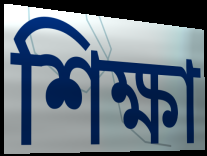
শিক্ষা